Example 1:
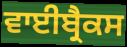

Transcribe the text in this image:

ਵਾਈਬ੍ਰੈਕਸ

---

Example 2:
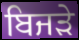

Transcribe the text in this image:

ਬਿਜੜੇ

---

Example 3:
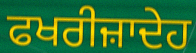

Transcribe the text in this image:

ਫਖਰੀਜ਼ਾਦੇਹ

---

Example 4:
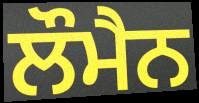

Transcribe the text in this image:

ਲੌਮੈਨ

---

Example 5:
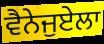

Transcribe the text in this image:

ਵੈਨੇਜੁਏਲਾ